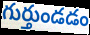
గుర్తుండడం